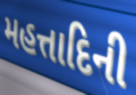
મહત્તાદિની